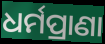
ଧର୍ମପ୍ରାଣା